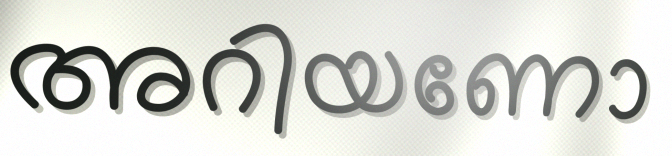
അറിയണോ